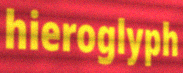
hieroglyph